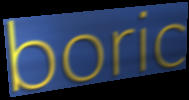
boric